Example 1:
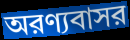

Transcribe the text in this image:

অরণ্যবাসর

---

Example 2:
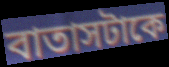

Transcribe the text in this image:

বাতাসটাকে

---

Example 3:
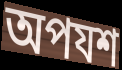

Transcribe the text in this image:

অপযশ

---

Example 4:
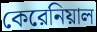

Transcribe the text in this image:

কেরেনিয়াল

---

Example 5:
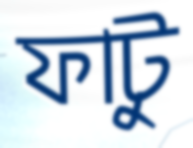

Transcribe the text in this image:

ফাটু